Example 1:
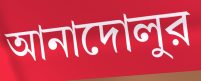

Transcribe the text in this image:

আনাদোলুর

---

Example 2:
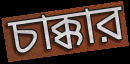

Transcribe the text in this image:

চাক্কার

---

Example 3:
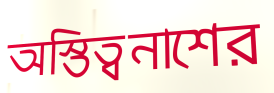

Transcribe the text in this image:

অস্তিত্বনাশের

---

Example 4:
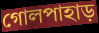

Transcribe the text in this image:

গোলপাহাড়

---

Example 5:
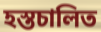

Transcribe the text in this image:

হস্তচালিত